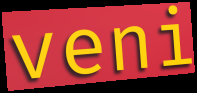
veni